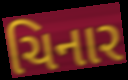
ચિનાર